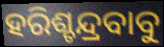
ହରିଶ୍ଚନ୍ଦ୍ରବାବୁ